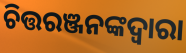
ଚିତ୍ତରଞ୍ଜନଙ୍କଦ୍ଵାରା